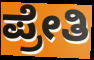
ಪ್ರೇತಿ